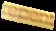
repent